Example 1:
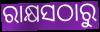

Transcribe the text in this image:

ରାକ୍ଷସଠାରୁ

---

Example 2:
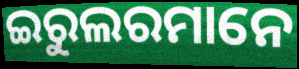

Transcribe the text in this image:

ଇରୁଲରମାନେ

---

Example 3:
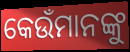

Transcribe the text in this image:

କେଉଁମାନଙ୍କୁ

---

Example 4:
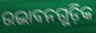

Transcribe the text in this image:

ଉଦ୍ଭାବନଗୁଡ଼ିକ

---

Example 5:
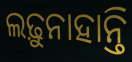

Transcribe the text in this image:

ଲଢ଼ୁନାହାନ୍ତି